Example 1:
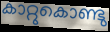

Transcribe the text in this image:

കാറ്റുകൊണ്ടു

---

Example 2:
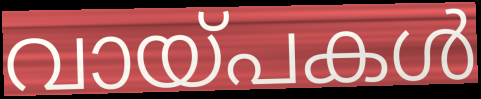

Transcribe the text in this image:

വായ്പകൾ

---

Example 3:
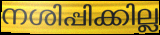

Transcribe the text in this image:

നശിപ്പിക്കില്ല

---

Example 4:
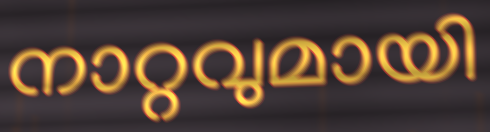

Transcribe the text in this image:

നാറ്റവുമായി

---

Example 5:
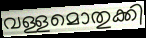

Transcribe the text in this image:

വള്ളമൊതുക്കി